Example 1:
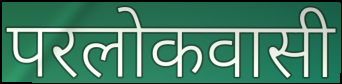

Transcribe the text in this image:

परलोकवासी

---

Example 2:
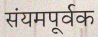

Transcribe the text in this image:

संयमपूर्वक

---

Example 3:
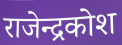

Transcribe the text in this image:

राजेन्द्रकोश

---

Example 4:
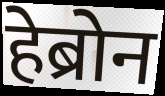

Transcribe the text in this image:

हेब्रोन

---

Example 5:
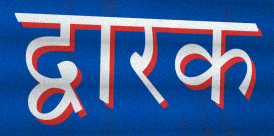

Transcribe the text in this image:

द्वारक